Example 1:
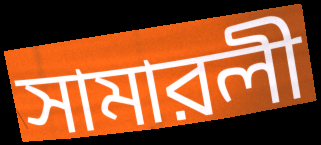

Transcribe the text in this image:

সামারলী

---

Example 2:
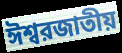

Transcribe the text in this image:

ঈশ্বরজাতীয়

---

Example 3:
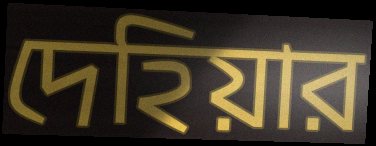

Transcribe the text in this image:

দেহিয়ার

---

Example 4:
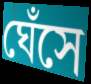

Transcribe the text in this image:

ঘেঁসে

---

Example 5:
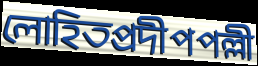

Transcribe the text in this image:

লোহিতপ্রদীপপল্লী